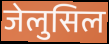
जेलुसिल